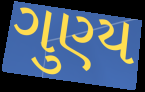
ગુણ્ય